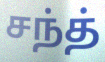
சந்த்